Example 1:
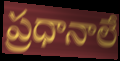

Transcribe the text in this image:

ప్రధానాలే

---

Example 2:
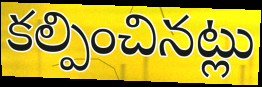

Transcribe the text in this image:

కల్పించినట్లు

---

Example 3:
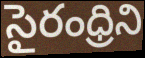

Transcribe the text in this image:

సైరంధ్రిని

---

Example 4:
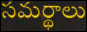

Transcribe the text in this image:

సమర్థాలు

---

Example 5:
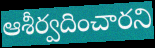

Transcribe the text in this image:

ఆశీర్వదించారని